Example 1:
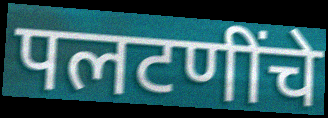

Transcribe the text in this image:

पलटणींचे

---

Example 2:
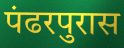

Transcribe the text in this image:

पंढरपुरास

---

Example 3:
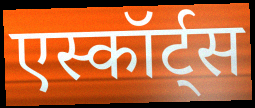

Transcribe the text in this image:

एस्कॉर्ट्स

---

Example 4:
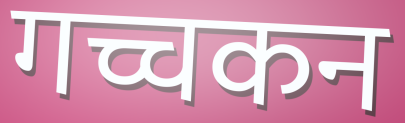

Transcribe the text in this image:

गच्चकन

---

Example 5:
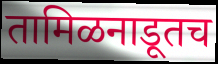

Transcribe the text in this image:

तामिळनाडूतच